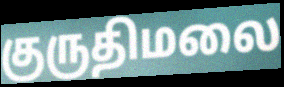
குருதிமலை